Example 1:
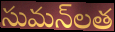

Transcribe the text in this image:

సుమన్‌లత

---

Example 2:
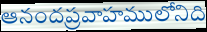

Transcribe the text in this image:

ఆనందప్రవాహములోనిది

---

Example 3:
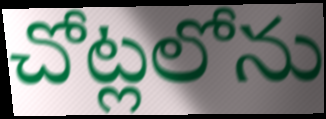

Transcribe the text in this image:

చోట్లలోను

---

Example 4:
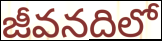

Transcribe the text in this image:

జీవనదిలో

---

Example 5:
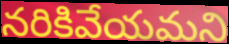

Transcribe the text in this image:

నరికివేయమని